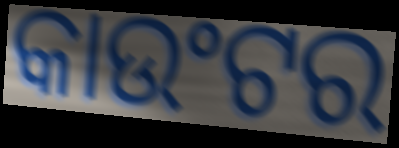
କାଉଂଟର